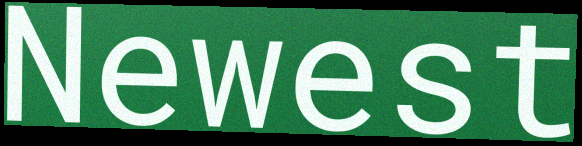
Newest